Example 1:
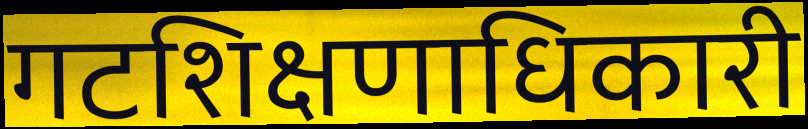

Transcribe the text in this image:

गटशिक्षणाधिकारी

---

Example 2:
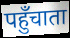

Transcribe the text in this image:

पहुँचाता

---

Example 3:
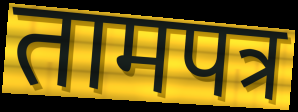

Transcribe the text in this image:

तामपत्र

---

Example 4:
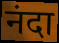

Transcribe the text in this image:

नंदा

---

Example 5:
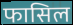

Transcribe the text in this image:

फासिल